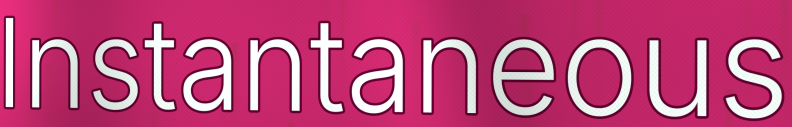
Instantaneous